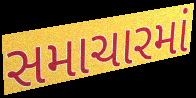
સમાચારમાં